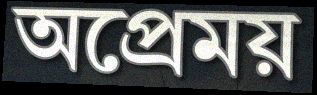
অপ্রেময়